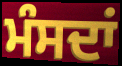
ਮੰਸਦਾਂ